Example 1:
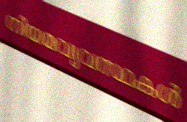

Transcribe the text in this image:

നിയമവ്യവസ്ഥകൾ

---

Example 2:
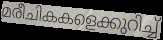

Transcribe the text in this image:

മരീചികകളെക്കുറിച്ച്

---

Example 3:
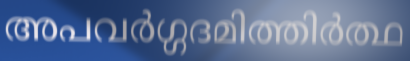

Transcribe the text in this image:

അപവർഗ്ഗദമിത്തിർത്ഥ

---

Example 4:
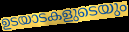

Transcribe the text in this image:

ഉടയാടകളുടെയും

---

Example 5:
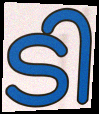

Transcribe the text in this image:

ടി